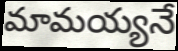
మామయ్యనే